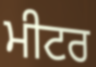
ਮੀਟਰ